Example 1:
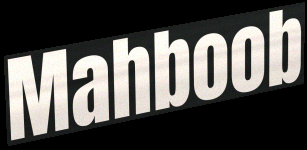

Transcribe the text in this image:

Mahboob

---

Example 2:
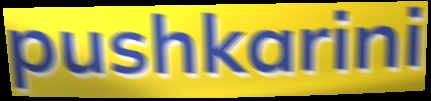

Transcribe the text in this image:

pushkarini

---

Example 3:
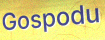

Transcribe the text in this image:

Gospodu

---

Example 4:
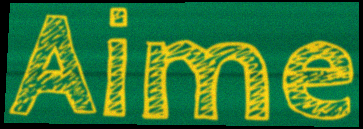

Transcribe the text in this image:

Aime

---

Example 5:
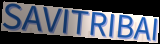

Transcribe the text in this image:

SAVITRIBAI